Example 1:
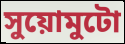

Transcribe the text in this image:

সুয়োমুটো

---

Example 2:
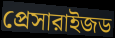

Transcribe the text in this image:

প্রেসারাইজড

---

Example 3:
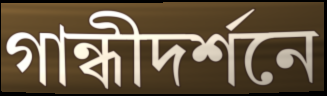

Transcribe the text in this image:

গান্ধীদর্শনে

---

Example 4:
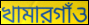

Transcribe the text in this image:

খামারগাঁও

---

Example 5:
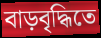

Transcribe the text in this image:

বাড়বৃদ্ধিতে